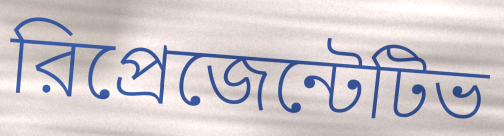
রিপ্রেজেন্টেটিভ